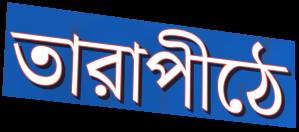
তারাপীঠে